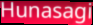
Hunasagi